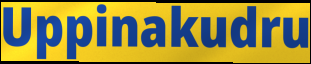
Uppinakudru